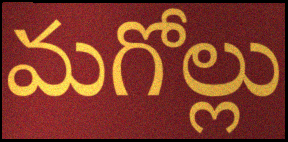
మగోల్లు